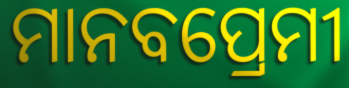
ମାନବପ୍ରେମୀ